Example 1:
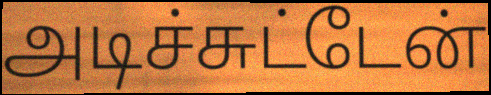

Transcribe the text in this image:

அடிச்சுட்டேன்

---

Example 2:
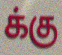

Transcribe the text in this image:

க்கு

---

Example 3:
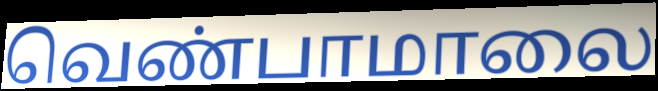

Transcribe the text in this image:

வெண்பாமாலை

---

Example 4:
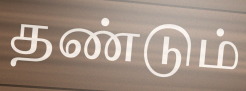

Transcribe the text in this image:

தண்டும்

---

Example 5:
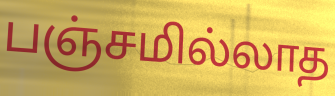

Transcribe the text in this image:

பஞ்சமில்லாத